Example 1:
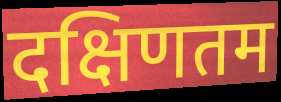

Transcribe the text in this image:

दक्षिणतम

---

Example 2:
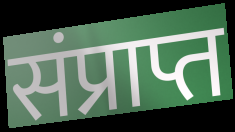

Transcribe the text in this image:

संप्राप्त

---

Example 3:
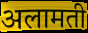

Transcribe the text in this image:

अलामती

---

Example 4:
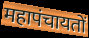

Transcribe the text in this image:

महापंचायतों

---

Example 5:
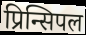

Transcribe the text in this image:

प्रिन्सिपल